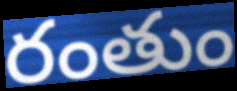
రంతుం